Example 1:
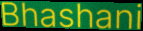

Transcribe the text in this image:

Bhashani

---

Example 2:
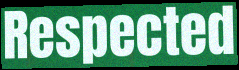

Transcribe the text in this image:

Respected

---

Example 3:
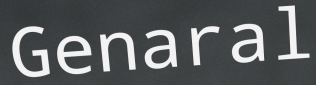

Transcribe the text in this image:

Genaral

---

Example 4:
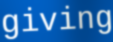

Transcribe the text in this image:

giving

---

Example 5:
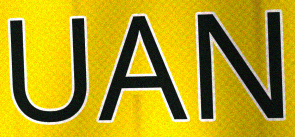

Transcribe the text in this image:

UAN